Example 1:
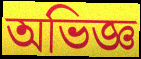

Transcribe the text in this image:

অভিজ্ঞ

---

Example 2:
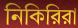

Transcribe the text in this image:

নিকিরিরা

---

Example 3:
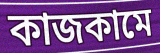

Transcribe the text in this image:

কাজকামে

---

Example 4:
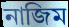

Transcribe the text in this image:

নাজিম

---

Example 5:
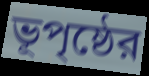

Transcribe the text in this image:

ভূপৃষ্ঠের